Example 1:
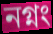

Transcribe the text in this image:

নগ্নং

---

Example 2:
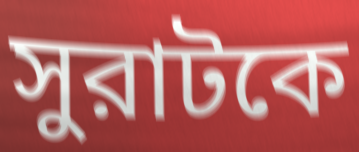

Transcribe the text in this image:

সুরাটকে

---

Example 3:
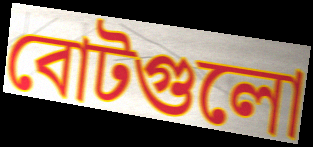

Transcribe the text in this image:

বোটগুলো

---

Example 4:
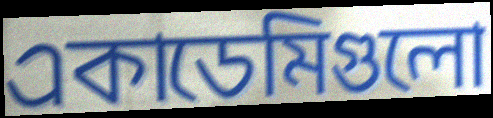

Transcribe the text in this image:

একাডেমিগুলো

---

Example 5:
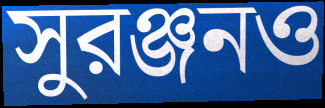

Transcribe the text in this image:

সুরঞ্জনও